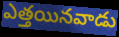
ఎత్తయినవాడు